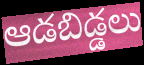
ఆడబిడ్డలు